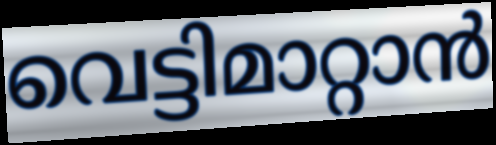
വെട്ടിമാറ്റാൻ